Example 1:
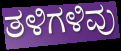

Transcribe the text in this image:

ತಳಿಗಳಿವು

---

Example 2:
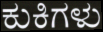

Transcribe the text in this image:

ಕುಕಿಗಳು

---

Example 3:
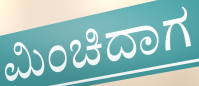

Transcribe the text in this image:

ಮಿಂಚಿದಾಗ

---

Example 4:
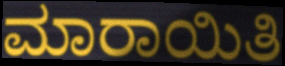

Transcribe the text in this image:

ಮಾರಾಯಿತಿ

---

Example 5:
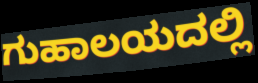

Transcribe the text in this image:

ಗುಹಾಲಯದಲ್ಲಿ